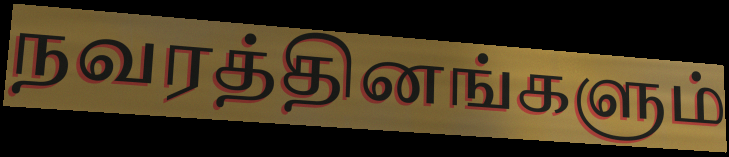
நவரத்தினங்களும்